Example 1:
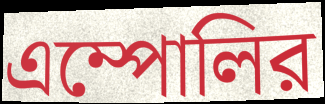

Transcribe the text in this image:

এম্পোলির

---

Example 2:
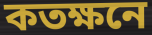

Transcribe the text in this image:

কতক্ষনে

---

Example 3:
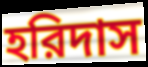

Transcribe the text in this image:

হরিদাস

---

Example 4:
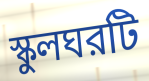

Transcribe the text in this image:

স্কুলঘরটি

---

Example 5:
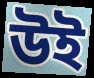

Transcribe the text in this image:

উই